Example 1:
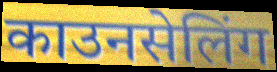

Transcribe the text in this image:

काउनसेलिंग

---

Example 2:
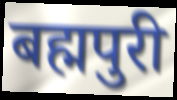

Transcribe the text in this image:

बह्मपुरी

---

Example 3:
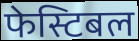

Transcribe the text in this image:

फेस्टिबल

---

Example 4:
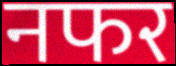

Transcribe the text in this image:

नफर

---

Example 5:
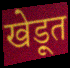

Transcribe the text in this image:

खेड़ूत